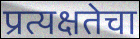
प्रत्यक्षतेचा